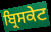
ਬ੍ਰਿਸਕੇਟ